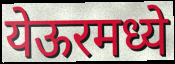
येऊरमध्ये